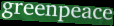
greenpeace